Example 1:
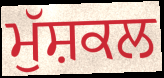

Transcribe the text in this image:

ਮੁੱਸ਼ਕਲ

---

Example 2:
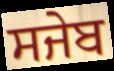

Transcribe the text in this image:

ਸਜੇਬ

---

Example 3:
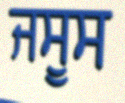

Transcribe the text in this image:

ਜਸੂਸ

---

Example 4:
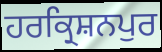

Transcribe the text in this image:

ਹਰਕ੍ਰਿਸ਼ਨਪੁਰ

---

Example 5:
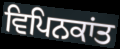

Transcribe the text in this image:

ਵਿਪਿਨਕਾਂਤ